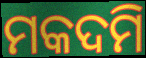
ମକଦମି